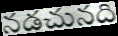
నడచునది